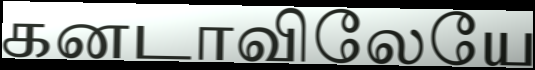
கனடாவிலேயே